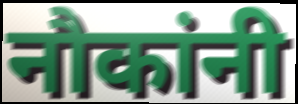
नौकांनी